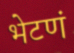
भेटणं